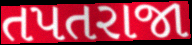
તપતરાજા